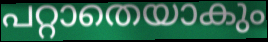
പറ്റാതെയാകും